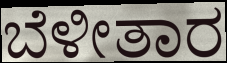
ಬೆಳೀತಾರ